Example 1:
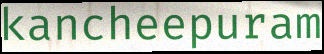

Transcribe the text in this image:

kancheepuram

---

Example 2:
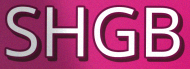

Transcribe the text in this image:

SHGB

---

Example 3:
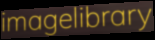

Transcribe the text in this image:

imagelibrary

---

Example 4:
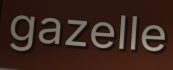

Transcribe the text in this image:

gazelle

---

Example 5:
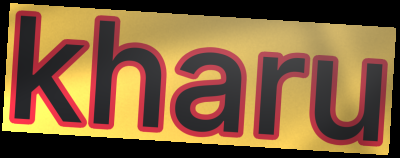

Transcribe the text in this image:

kharu